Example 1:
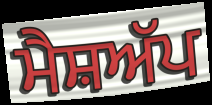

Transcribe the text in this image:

ਮੈਸ਼ਅੱਪ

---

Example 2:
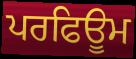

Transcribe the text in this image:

ਪਰਫਿਊਮ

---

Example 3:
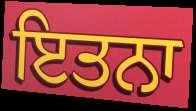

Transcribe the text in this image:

ਇਤਨਾ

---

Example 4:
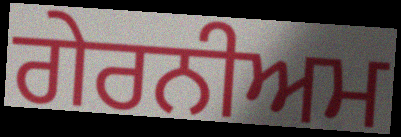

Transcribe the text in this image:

ਗੇਰਨੀਅਮ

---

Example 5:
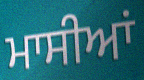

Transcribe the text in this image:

ਮਾਸੀਆਂ